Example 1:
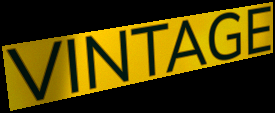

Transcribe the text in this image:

VINTAGE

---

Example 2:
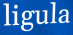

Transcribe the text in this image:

ligula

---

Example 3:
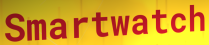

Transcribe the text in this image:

Smartwatch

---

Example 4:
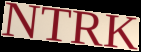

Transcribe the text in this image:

NTRK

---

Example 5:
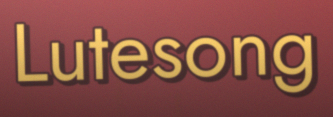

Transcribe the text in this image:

Lutesong